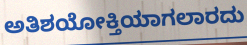
ಅತಿಶಯೋಕ್ತಿಯಾಗಲಾರದು